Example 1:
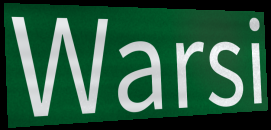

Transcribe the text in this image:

Warsi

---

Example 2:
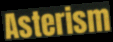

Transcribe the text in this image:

Asterism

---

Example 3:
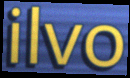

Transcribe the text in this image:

ilvo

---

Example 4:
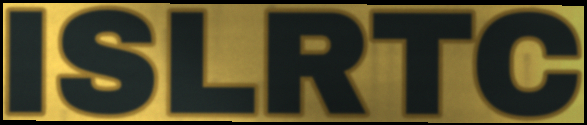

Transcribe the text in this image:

ISLRTC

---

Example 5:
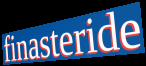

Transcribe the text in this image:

finasteride